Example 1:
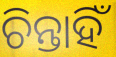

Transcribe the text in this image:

ଚିନ୍ତାହିଁ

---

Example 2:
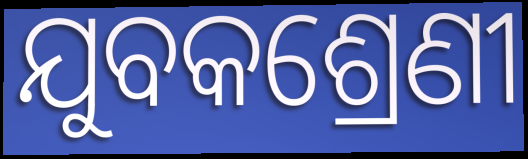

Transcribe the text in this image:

ଯୁବକଶ୍ରେଣୀ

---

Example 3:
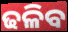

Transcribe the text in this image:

ଢଳିବ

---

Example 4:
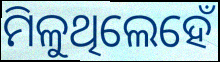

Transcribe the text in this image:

ମିଳୁଥିଲେହେଁ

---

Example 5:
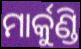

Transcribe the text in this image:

ମାର୍କୁଣ୍ଡି